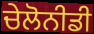
ਚੇਲੋਨੀਡੀ